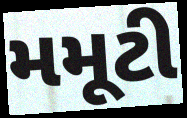
મમૂટી